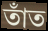
তাঁত